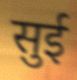
सुई